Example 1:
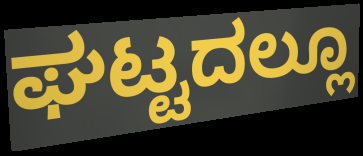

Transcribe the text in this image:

ಘಟ್ಟದಲ್ಲೂ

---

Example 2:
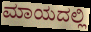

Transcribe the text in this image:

ಮಾಯದಲ್ಲಿ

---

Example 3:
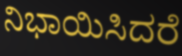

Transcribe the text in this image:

ನಿಭಾಯಿಸಿದರೆ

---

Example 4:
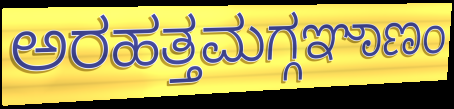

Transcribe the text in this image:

ಅರಹತ್ತಮಗ್ಗಞಾಣಂ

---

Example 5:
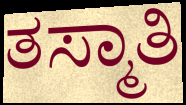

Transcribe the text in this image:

ತಸ್ಮಾತಿ